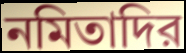
নমিতাদির